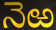
నెఱ